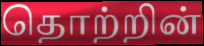
தொற்றின்